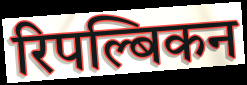
रिपल्बिकन